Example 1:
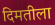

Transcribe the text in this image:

दिमतीला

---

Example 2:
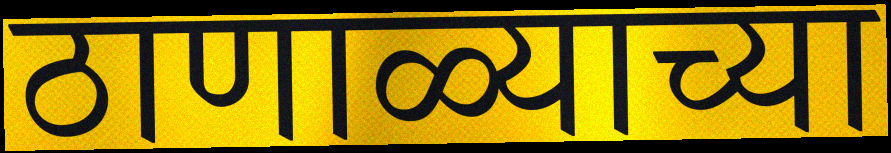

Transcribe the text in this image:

ठाणाळ्याच्या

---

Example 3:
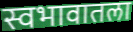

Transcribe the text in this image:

स्वभावातला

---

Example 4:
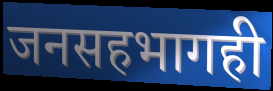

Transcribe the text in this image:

जनसहभागही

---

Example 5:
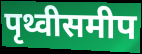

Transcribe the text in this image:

पृथ्वीसमीप